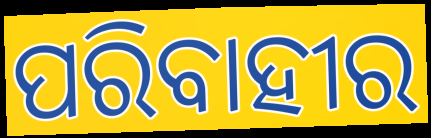
ପରିବାହୀର